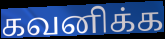
கவனிக்க